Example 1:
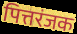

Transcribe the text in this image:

पित्तरंजक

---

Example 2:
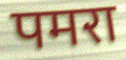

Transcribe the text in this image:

पमरा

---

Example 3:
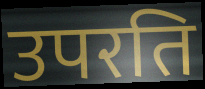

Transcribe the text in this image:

उपरति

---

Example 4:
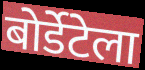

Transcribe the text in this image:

बोर्डेटेला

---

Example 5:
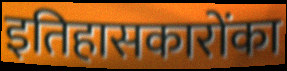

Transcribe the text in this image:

इतिहासकारोंका